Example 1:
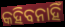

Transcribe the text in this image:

କହିବନାହିଁ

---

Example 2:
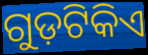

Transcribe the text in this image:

ଗୁଡ଼ଟିକିଏ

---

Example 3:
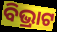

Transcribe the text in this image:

ବିଭ୍ରାଟ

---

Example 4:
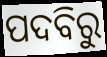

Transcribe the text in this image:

ପଦବିରୁ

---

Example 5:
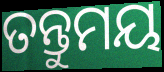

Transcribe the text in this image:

ତନ୍ତୁମୟ